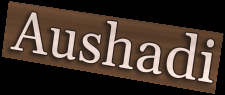
Aushadi